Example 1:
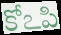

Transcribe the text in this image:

కోఽపి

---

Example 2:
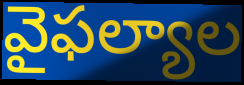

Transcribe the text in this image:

వైఫల్యాల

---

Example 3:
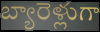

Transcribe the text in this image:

బ్యారెళ్లుగా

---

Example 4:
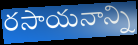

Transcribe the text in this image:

రసాయనాన్ని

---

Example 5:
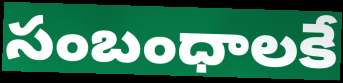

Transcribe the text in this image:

సంబంధాలకే